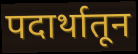
पदार्थातून